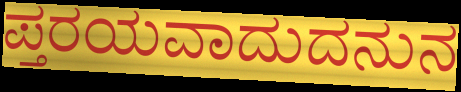
ಪ್ತರಯವಾದುದನುನ